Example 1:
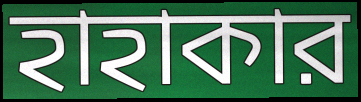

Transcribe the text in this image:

হাহাকার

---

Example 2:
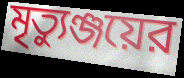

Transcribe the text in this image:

মৃত্যুঞ্জয়ের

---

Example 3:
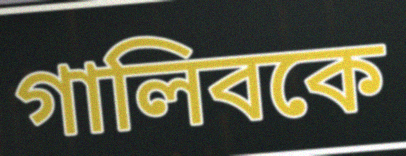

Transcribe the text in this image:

গালিবকে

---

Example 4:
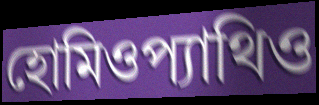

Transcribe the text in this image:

হোমিওপ্যাথিও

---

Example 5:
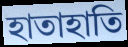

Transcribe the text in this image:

হাতাহাতি